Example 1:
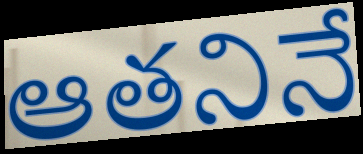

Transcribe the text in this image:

ఆతనినే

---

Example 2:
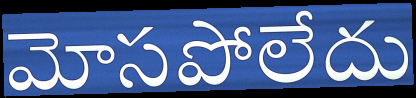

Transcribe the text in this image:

మోసపోలేదు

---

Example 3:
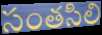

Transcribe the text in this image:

సంతసిలి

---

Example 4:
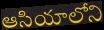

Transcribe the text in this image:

ఆసియాలోని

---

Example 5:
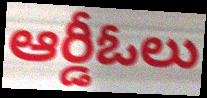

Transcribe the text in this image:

ఆర్డీఓలు